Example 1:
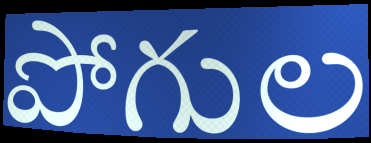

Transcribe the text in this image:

పోగుల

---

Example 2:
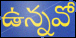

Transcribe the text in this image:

ఉన్నవో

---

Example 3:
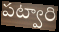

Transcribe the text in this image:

పట్వారి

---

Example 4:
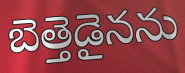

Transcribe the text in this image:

బెత్తెడైనను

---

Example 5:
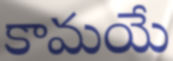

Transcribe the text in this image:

కామయే